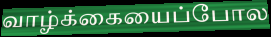
வாழ்க்கையைப்போல